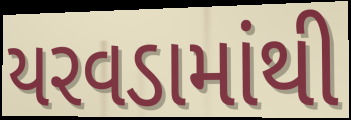
યરવડામાંથી